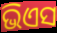
ଭିଏସ